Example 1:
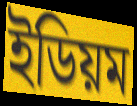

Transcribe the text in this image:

ইডিয়ম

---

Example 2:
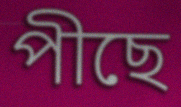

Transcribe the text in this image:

পীছে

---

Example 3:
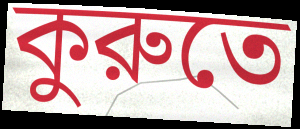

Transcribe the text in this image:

কুরুতে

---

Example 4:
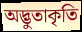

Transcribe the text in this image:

অদ্ভুতাকৃতি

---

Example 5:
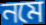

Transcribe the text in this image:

নমে